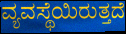
ವ್ಯವಸ್ಥೆಯಿರುತ್ತದೆ